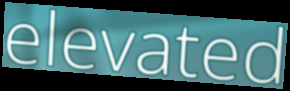
elevated